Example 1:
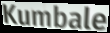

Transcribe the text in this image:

Kumbale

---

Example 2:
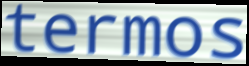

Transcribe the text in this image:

termos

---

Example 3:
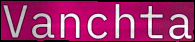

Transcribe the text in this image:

Vanchta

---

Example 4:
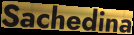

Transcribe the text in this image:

Sachedina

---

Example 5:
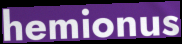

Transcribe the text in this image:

hemionus